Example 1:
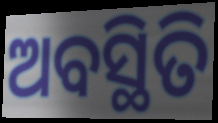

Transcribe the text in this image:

ଅବସ୍ଥିତି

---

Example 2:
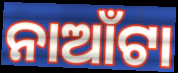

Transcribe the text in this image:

ନାଆଁଟା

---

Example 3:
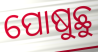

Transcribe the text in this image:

ପୋଷୁଛୁ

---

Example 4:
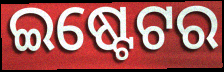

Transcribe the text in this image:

ଇଷ୍ଟେଟର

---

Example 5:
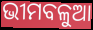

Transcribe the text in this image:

ଭୀମବଳୁଆ